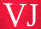
VJ